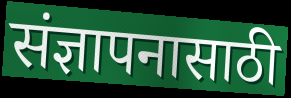
संज्ञापनासाठी